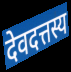
देवदत्तस्य